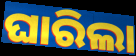
ଘାରିଲା